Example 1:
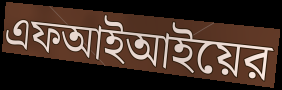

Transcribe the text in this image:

এফআইআইয়ের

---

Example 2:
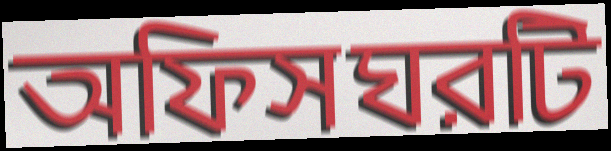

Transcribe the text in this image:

অফিসঘরটি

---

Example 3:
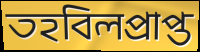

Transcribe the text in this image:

তহবিলপ্রাপ্ত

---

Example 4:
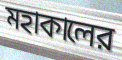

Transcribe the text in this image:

মহাকালের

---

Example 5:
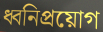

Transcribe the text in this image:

ধ্বনিপ্রয়োগ